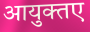
आयुक्तए